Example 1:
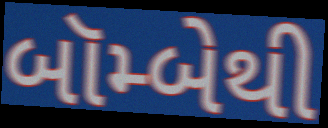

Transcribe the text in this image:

બૉમ્બેથી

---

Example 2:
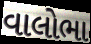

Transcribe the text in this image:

વાલોભા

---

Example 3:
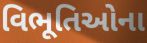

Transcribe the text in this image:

વિભૂતિઓના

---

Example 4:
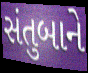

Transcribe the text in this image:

સંતુબાને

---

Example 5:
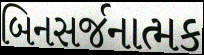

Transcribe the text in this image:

બિનસર્જનાત્મક